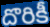
దొరికీ